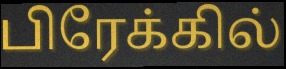
பிரேக்கில்